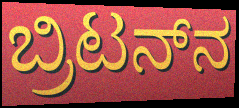
ಬ್ರಿಟನ್‌ನ